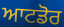
ਆਟਡੋਰ